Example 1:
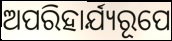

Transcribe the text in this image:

ଅପରିହାର୍ଯ୍ୟରୂପେ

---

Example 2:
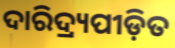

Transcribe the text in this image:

ଦାରିଦ୍ର୍ୟପୀଡ଼ିତ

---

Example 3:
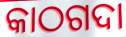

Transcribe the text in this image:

କାଠଗଦା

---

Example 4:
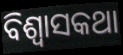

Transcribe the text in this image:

ବିଶ୍ଵାସକଥା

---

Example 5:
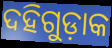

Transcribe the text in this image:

ଦହିଗୁଡ଼ାକ